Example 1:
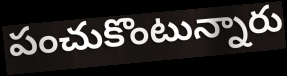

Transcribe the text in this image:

పంచుకొంటున్నారు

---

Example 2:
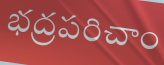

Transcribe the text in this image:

భద్రపరిచాం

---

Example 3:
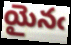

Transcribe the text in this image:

యైనఁ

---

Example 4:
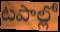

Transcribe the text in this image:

టపాల్లో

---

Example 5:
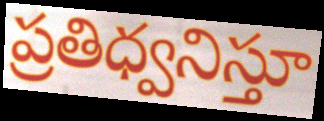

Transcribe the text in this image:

ప్రతిధ్వనిస్తూ